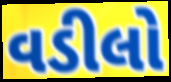
વડીલો